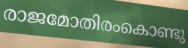
രാജമോതിരംകൊണ്ടു